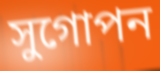
সুগোপন